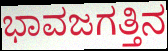
ಭಾವಜಗತ್ತಿನ